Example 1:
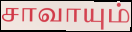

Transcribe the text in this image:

சாவாயும்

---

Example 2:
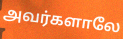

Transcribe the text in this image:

அவர்களாலே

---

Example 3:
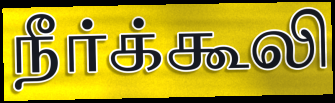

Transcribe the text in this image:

நீர்க்கூலி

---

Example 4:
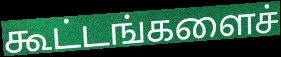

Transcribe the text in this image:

கூட்டங்களைச்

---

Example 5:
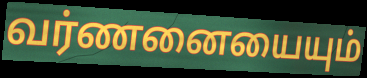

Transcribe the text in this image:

வர்ணனையையும்